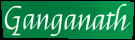
Ganganath